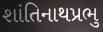
શાંતિનાથપ્રભુ